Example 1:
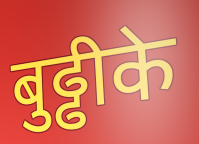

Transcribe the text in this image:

बुढ्ढीके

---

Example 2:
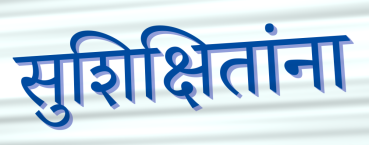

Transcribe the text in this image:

सुशिक्षितांना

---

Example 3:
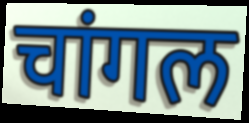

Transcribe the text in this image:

चांगल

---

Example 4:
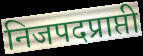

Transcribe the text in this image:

निजपदप्राप्ती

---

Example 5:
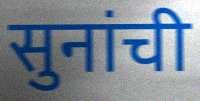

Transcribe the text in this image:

सुनांची